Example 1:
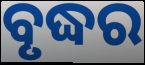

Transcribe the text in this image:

ବୃଦ୍ଧର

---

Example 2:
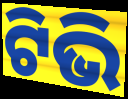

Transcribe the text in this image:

ଟିଭି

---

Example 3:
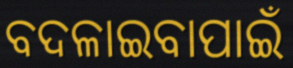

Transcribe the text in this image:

ବଦଳାଇବାପାଇଁ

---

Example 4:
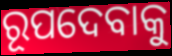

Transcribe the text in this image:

ରୂପଦେବାକୁ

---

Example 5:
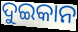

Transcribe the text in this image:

ଦୁଇକାନ